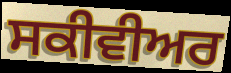
ਸਕੀਵੀਅਰ